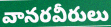
వానరవీరులు